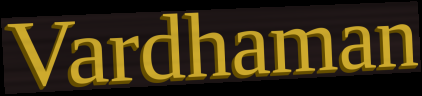
Vardhaman